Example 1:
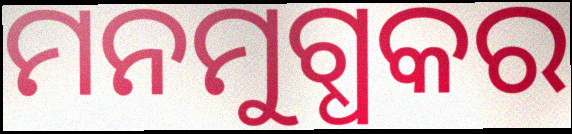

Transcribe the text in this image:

ମନମୁଗ୍ଧକର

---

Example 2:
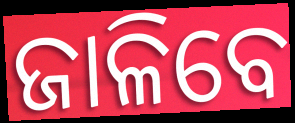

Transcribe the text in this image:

ଜାଳିବେ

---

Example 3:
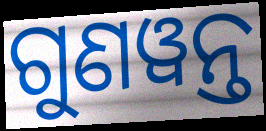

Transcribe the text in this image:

ଗୁଣୱନ୍ତ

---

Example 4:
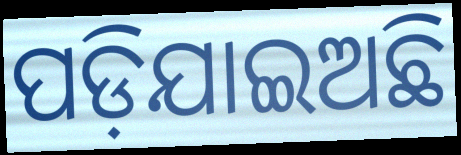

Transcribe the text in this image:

ପଡ଼ିଯାଇଅଛି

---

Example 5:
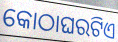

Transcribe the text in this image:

କୋଠାଘରଟିଏ